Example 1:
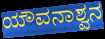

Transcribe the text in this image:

ಯೌವನಾಶ್ವನ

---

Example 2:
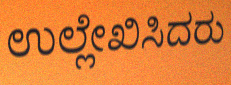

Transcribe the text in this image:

ಉಲ್ಲೇಖಿಸಿದರು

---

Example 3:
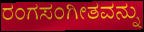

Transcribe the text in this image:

ರಂಗಸಂಗೀತವನ್ನು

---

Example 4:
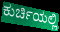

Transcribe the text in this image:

ಕುರ್ಚಿಯಲ್ಲಿ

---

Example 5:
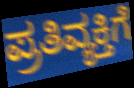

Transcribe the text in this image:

ಪ್ರತಿವ್ಯಕ್ತಿಗೆ